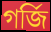
গৰ্জি